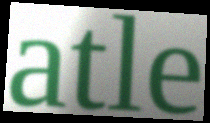
atle